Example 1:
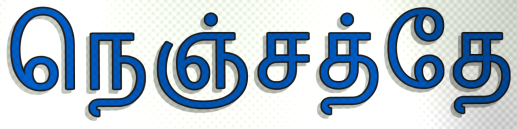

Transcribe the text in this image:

நெஞ்சத்தே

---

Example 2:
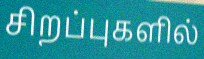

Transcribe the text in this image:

சிறப்புகளில்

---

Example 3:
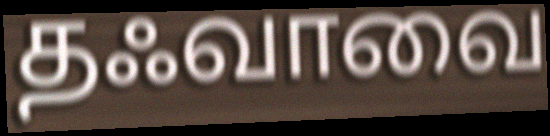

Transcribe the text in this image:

தஃவாவை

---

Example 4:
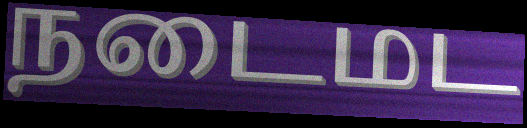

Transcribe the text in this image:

நடைமட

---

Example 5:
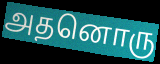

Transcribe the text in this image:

அதனொரு